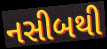
નસીબથી